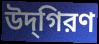
উদ্‌গিরণ